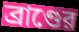
ব্রাণ্ডের